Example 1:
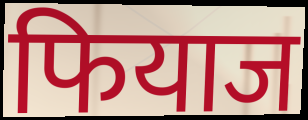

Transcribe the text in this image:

फियाज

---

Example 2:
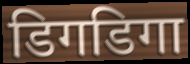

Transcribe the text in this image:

डिगडिगा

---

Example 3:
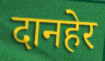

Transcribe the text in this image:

दानहेर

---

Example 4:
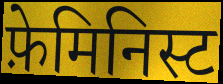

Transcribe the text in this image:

फ़ेमिनिस्ट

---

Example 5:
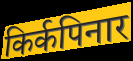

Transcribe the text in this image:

किर्कपिनार